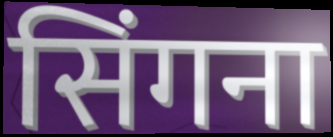
सिंगना